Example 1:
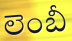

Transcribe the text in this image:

లెంబీ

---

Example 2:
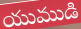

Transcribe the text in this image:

యుముడి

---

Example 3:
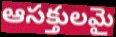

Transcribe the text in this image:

ఆసక్తులమై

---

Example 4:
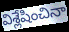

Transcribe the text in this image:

విశ్లేషించినా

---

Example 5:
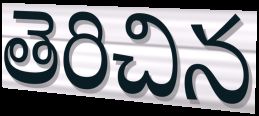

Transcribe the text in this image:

తెరిచిన